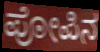
ಪೋಪಿನ